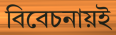
বিবেচনায়ই